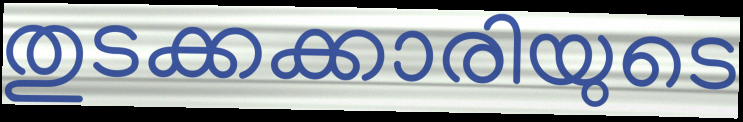
തുടക്കക്കാരിയുടെ